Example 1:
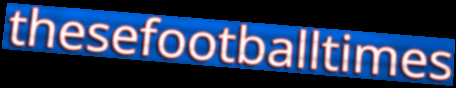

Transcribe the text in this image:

thesefootballtimes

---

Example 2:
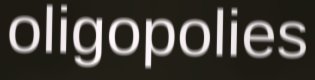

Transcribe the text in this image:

oligopolies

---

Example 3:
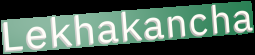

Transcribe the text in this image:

Lekhakancha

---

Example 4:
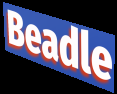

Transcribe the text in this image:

Beadle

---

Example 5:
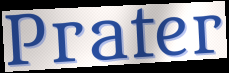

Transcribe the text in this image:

Prater